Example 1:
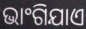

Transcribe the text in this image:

ଭାଂଗିଯାଏ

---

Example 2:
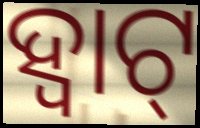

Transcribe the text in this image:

ହ୍ବାଟ୍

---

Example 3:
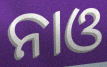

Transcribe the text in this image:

ନାଓ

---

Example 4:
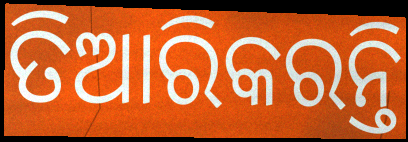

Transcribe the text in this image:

ତିଆରିକରନ୍ତି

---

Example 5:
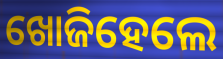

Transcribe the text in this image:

ଖୋଜିହେଲେ